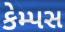
કેમ્પસ